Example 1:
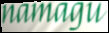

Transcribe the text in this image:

namagu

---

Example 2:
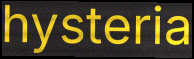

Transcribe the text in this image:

hysteria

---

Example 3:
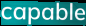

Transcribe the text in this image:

capable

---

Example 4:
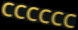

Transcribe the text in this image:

CCCCCC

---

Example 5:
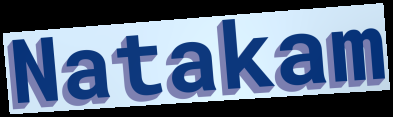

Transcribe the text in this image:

Natakam